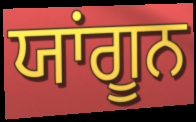
ਯਾਂਗੂਨ